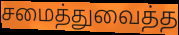
சமைத்துவைத்த